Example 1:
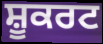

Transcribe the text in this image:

ਸ਼ੂਕਰਟ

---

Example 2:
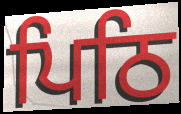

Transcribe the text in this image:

ਪਿਠਿ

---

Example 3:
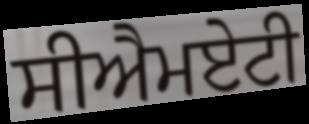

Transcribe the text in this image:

ਸੀਐਮਏਟੀ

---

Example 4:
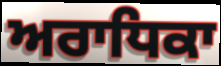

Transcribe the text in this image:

ਅਰਾਧਿਕਾ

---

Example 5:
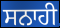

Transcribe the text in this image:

ਸਨਾਹੀ